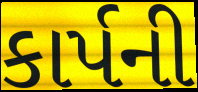
કાર્પની